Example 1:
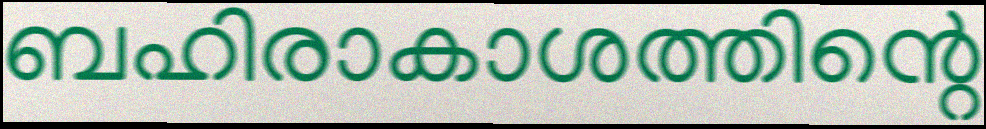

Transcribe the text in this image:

ബഹിരാകാശത്തിന്റെ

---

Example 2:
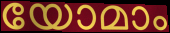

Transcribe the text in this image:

യോമാം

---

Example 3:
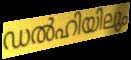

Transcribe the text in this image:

ഡൽഹിയിലും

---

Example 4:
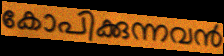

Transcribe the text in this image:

കോപിക്കുന്നവൻ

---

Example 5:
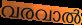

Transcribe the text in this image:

വരവാൽ